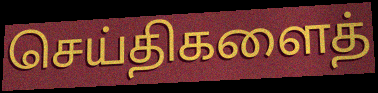
செய்திகளைத்